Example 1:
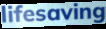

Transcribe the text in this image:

lifesaving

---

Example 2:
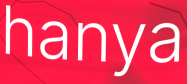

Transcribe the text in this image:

hanya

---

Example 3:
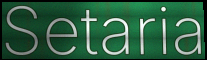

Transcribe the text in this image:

Setaria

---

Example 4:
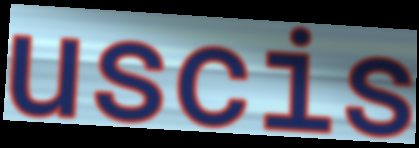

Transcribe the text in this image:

uscis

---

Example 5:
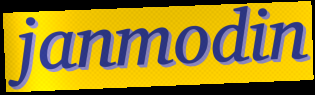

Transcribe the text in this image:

janmodin